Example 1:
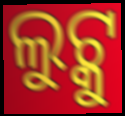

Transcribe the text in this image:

ଲୁଟ୍କୁ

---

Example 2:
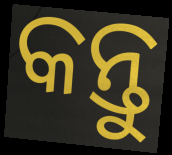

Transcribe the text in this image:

କନ୍ତୁ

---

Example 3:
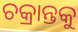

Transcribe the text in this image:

ଚକ୍ରାନ୍ତକୁ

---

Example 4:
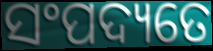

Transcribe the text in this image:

ସଂପଦ୍ୟତେ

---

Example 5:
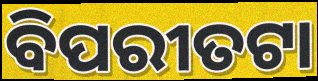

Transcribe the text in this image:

ବିପରୀତଟା